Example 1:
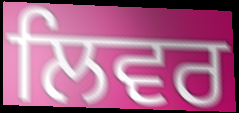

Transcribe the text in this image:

ਲਿਵਰ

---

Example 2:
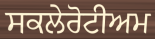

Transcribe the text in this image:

ਸਕਲੇਰੋਟੀਅਮ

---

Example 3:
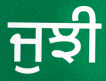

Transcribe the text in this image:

ਜੁਝੀ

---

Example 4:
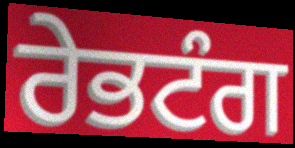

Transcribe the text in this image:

ਰੇਭਟੰਗ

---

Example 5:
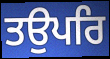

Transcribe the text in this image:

ਤਉਪਰਿ